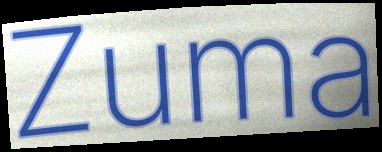
Zuma